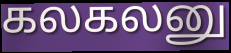
கலகலனு